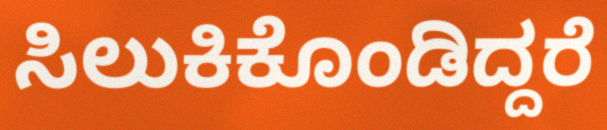
ಸಿಲುಕಿಕೊಂಡಿದ್ದರೆ